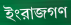
ইংরাজগণ